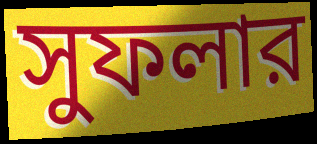
সুফলার